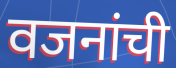
वजनांची